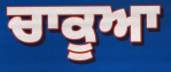
ਚਾਕੂਆ